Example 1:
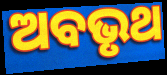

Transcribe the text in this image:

ଅବଭୃଥ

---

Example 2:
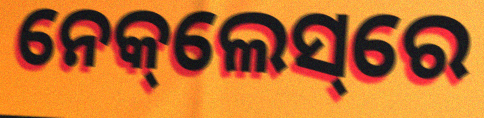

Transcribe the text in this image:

ନେକ୍‌ଲେସ୍‌ରେ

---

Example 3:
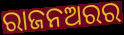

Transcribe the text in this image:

ରାଜନଅରର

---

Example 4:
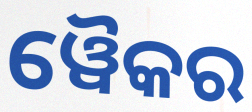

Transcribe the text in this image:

ୱୈକର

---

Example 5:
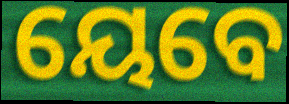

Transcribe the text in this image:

ୟେବେ